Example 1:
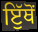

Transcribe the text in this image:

ਇੁੱਥੋਂ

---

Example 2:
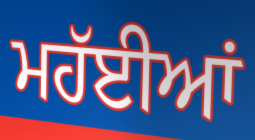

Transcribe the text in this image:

ਮਹੱਈਆਂ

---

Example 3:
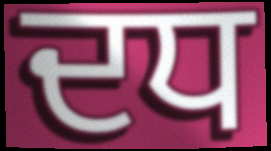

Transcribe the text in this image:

ਦਧ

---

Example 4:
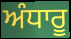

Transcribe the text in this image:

ਅੰਧਾਰੂ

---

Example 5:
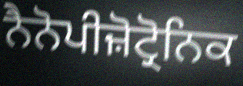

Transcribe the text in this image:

ਨੈਨੋਪੀਜ਼ੋਟ੍ਰੋਨਿਕ